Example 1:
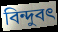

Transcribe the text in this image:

বিন্দুবৎ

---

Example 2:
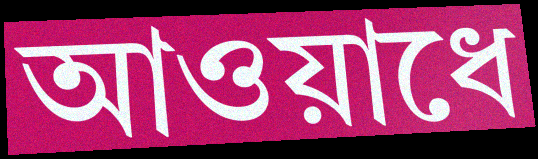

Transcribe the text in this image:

আওয়াধে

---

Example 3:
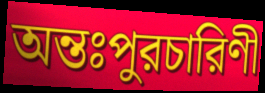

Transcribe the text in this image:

অন্তঃপুরচারিণী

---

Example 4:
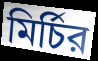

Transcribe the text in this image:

মির্চির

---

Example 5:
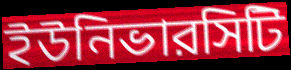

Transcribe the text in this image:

ইউনিভারসিটি